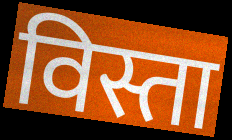
विस्ता